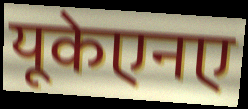
यूकेएनए